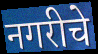
नगरीचे